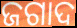
ଜଗାଦ